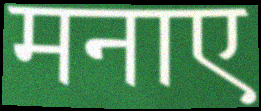
मनाए